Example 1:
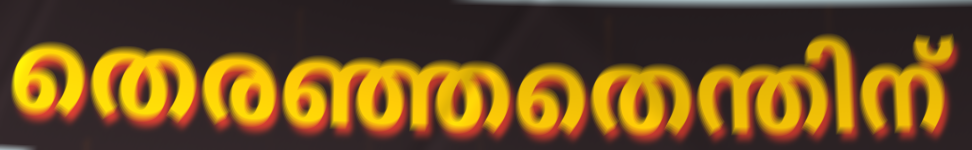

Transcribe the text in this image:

തെരഞ്ഞതെന്തിന്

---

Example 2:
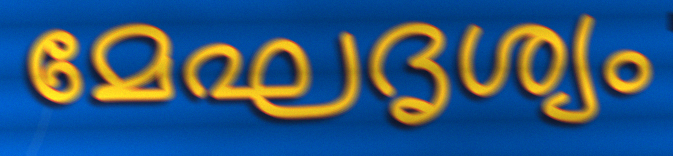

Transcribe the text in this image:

മേഘദൃശ്യം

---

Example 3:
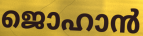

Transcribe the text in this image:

ജൊഹാൻ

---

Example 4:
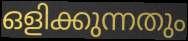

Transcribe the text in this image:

ഒളിക്കുന്നതും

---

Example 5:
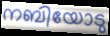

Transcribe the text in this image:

നബിയോടു